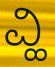
ವ್ಹಿ